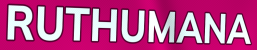
RUTHUMANA